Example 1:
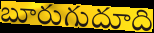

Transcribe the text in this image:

బూరుగుదూది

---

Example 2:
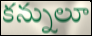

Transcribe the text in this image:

కన్నులూ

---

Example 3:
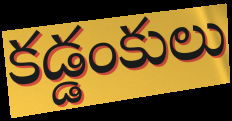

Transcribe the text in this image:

కడ్డంకులు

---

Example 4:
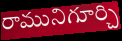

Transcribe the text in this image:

రామునిగూర్చి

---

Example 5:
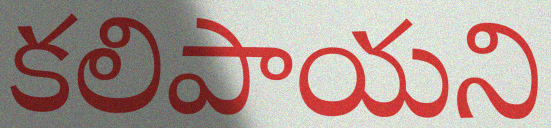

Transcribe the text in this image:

కలిపాయని